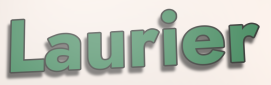
Laurier